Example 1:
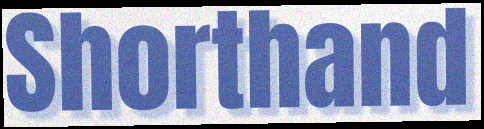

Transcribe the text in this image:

Shorthand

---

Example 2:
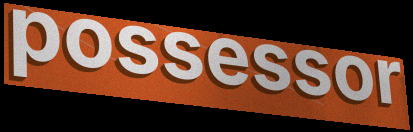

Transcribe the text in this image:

possessor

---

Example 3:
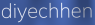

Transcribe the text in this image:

diyechhen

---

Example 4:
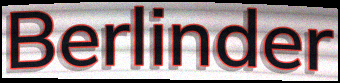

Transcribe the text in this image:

Berlinder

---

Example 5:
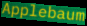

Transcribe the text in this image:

Applebaum